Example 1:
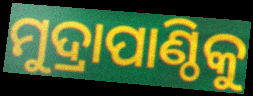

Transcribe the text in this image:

ମୁଦ୍ରାପାଣ୍ଠିକୁ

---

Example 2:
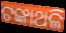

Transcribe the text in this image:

ଟଙ୍କାଥଳି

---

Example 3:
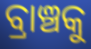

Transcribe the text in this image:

ବ୍ରାଞ୍ଚକୁ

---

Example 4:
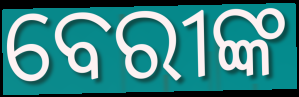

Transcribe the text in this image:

ବେରୀଙ୍କ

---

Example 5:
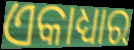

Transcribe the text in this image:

ଏକାଧ୍ୟାର